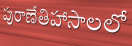
పురాణేతిహాసాలలో